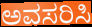
ಅವಸರಿಸಿ